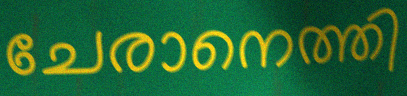
ചേരാനെത്തി